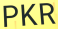
PKR